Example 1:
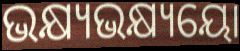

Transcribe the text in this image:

ଭକ୍ଷ୍ୟଭକ୍ଷ୍ୟୟୋ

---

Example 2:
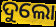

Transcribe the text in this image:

ଦୁଲୋ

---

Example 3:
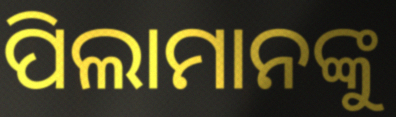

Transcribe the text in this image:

ପିଲାମାନଙ୍କୁ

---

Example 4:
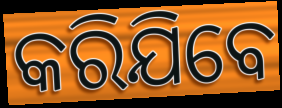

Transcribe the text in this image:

କରିଯିବେ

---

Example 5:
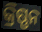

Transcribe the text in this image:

କ୍ରିଷ୍ଣନ